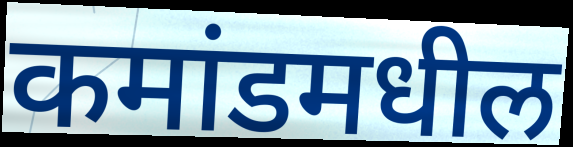
कमांडमधील